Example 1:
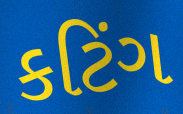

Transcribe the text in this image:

કટિંગ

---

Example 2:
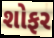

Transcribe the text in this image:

શોફર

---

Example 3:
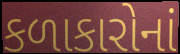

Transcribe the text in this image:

કળાકારોનાં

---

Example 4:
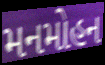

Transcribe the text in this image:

મનમોહન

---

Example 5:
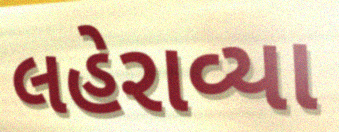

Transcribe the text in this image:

લહેરાવ્યા